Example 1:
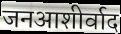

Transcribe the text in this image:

जनआशीर्वाद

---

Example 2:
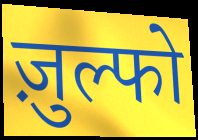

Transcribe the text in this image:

ज़ुल्फो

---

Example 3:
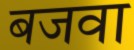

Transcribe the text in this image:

बजवा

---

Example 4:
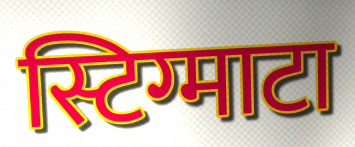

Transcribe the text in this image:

स्टिग्माटा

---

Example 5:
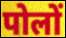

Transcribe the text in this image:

पोलों